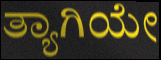
ತ್ಯಾಗಿಯೇ